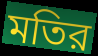
মতির